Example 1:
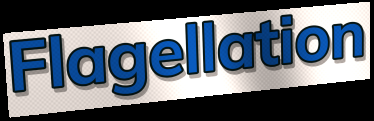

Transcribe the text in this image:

Flagellation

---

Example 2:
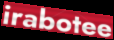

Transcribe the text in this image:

irabotee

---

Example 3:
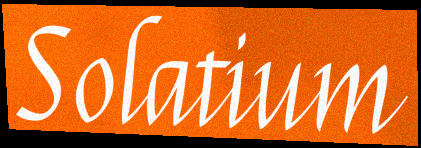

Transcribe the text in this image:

Solatium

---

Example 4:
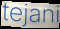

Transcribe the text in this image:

tejani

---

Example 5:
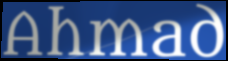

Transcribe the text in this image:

Ahmad